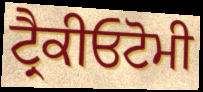
ਟ੍ਰੈਕੀਓਟੋਮੀ